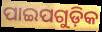
ପାଇପଗୁଡ଼ିକ